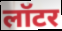
लॉटर